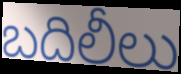
బదిలీలు